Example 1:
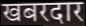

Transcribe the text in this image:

खबरदार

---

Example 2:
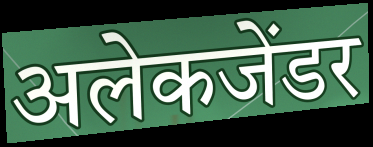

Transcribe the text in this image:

अलेकजेंडर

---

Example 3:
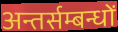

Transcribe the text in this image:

अन्तर्सम्बन्धों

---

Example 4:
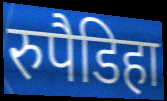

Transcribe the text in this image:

रुपैडिहा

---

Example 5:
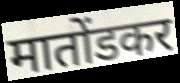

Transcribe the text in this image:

मातोंडकर